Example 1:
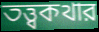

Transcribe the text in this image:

তত্ত্বকথার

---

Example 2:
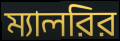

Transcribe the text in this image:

ম্যালরির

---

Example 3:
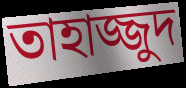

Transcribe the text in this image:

তাহাজ্জুদ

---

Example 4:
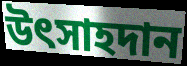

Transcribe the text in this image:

উৎসাহদান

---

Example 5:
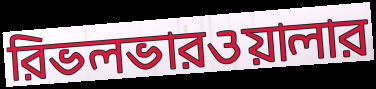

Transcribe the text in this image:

রিভলভারওয়ালার